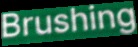
Brushing